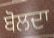
ਬੋਲਦਾ